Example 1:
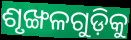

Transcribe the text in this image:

ଶୃଙ୍ଖଳଗୁଡ଼ିକୁ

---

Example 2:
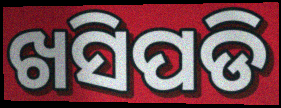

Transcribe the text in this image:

ଖସିପଡି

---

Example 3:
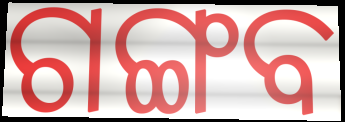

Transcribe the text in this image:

ଗଙ୍ଗବ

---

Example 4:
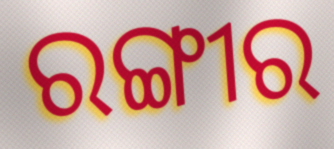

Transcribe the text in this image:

ରଙ୍ଗୀର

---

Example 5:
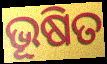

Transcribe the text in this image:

ଭୂଷିତ